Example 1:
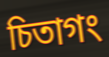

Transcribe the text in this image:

চিতাগং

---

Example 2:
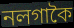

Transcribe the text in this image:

নলগাকৈ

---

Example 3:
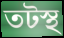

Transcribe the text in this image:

তটস্থ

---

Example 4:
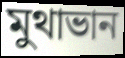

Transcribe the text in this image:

মুথাভান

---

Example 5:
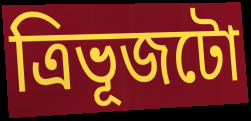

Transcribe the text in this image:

ত্ৰিভূজটো